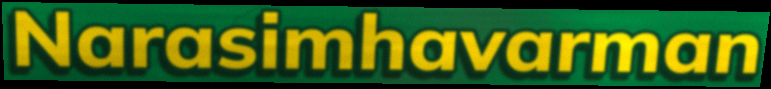
Narasimhavarman